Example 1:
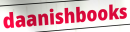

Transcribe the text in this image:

daanishbooks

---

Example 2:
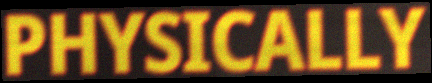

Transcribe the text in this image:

PHYSICALLY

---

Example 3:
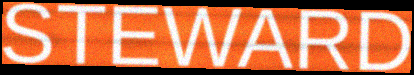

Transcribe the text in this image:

STEWARD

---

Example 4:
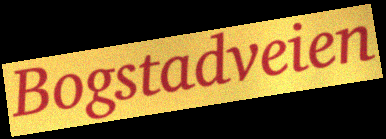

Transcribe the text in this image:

Bogstadveien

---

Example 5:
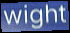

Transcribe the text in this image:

wight